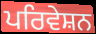
ਪਰਿਵੇਸ਼ਨ